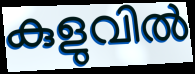
കുളുവിൽ